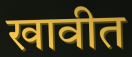
खावीत